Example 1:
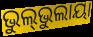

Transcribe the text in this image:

ଭୁଲ୍‌ଭୁଲାୟା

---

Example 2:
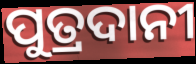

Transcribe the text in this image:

ପୁତ୍ରଦାନୀ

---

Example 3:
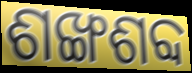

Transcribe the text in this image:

ଶଙ୍ଖଶବ୍ଦ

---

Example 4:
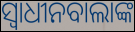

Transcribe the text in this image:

ସ୍ୱାଧୀନବାଲାଙ୍କ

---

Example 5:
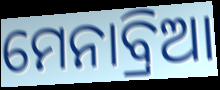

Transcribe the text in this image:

ମେନାବ୍ରିଆ